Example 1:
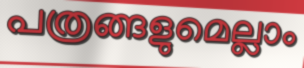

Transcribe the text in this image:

പത്രങ്ങളുമെല്ലാം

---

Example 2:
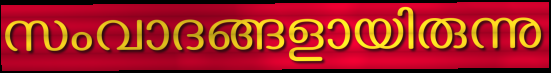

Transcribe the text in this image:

സംവാദങ്ങളായിരുന്നു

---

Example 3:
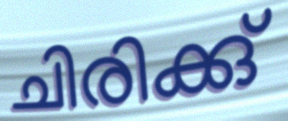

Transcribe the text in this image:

ചിരിക്കു്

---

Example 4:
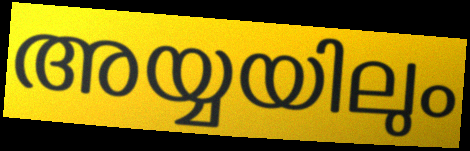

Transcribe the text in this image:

അയ്യയിലും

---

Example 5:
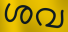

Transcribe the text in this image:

ശവ